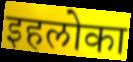
इहलोका